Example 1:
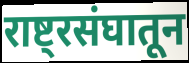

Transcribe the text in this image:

राष्ट्रसंघातून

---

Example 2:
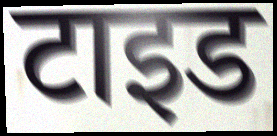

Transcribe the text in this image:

टाइड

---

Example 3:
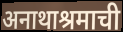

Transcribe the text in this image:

अनाथाश्रमाची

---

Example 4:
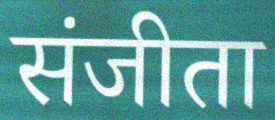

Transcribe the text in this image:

संजीता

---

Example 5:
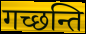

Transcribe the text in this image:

गच्छन्ति